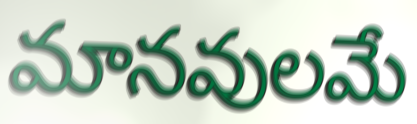
మానవులమే